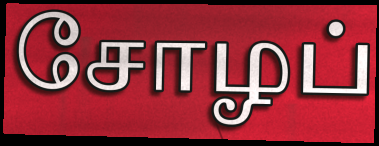
சோழப்